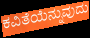
ಕವಿತೆಯೆನ್ನುವುದು